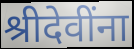
श्रीदेवींना